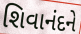
શિવાનંદને